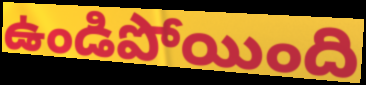
ఉండిపోయింది